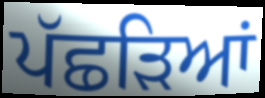
ਪੱਛੜਿਆਂ